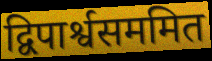
द्विपार्श्वसममित